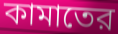
কামাতের